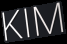
KIM